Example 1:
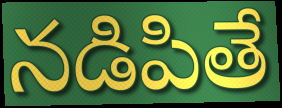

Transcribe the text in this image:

నడిపితే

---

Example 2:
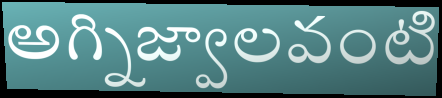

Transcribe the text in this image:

అగ్నిజ్వాలవంటి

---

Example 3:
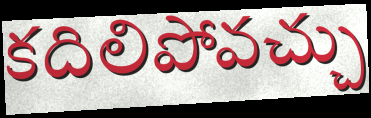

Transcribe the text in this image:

కదిలిపోవచ్చు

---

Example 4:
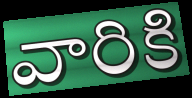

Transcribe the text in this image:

వారికి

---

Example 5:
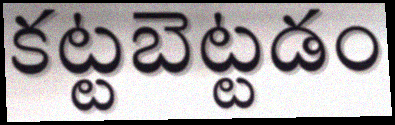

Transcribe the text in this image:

కట్టబెట్టడం